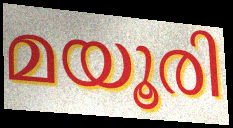
മയൂരി